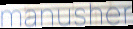
manusher